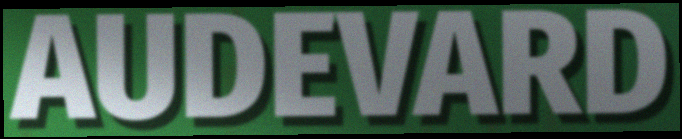
AUDEVARD